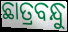
ଛାତ୍ରବନ୍ଧୁ